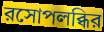
রসোপলব্ধির